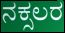
ನಕ್ಸಲರ